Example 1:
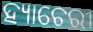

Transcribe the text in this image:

ହ୍ୟାଚେରୀ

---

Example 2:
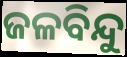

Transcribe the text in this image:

ଜଳବିନ୍ଦୁ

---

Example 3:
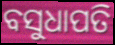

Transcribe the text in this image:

ବସୁଧାପତି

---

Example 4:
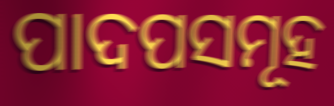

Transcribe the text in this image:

ପାଦପସମୂହ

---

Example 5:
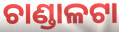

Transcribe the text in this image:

ଚାଣ୍ଡାଳଟା